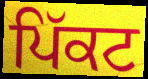
ਪਿੱਕਟ